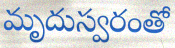
మృదుస్వరంతో